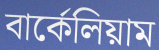
বার্কেলিয়াম